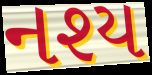
નશ્ય